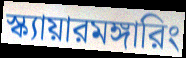
স্ক্যায়ারমঙ্গারিং